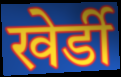
खेर्डी